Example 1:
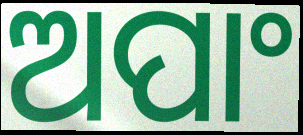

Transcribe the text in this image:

ଅପାଂ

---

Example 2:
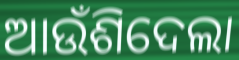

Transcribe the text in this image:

ଆଉଁଶିଦେଲା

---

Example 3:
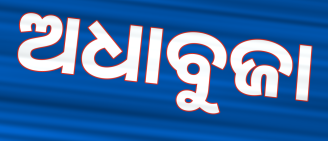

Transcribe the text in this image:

ଅଧାବୁଜା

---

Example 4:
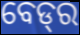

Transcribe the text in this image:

ବେଡ୍‍ର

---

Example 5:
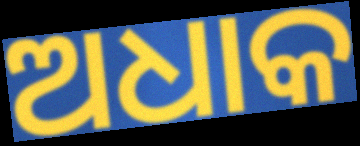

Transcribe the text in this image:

ଅଧାକ